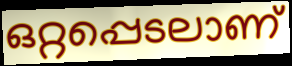
ഒറ്റപ്പെടലാണ്